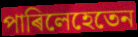
পাৰিলেহেতেন